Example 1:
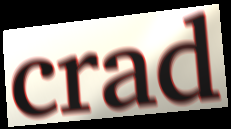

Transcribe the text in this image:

crad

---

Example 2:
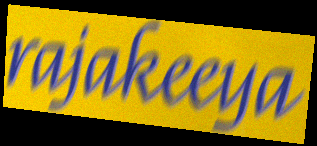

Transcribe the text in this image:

rajakeeya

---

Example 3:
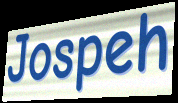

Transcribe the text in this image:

Jospeh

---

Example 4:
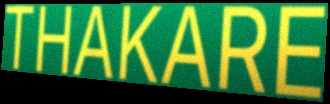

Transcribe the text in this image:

THAKARE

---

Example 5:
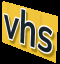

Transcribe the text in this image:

vhs